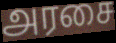
அரசை